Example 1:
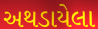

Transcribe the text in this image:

અથડાયેલા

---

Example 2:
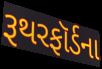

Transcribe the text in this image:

રૂથરફૉર્ડના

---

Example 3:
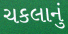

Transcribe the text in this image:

ચકલાનું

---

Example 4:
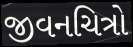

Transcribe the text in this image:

જીવનચિત્રો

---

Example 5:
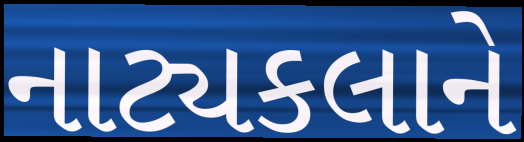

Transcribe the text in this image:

નાટ્યકલાને